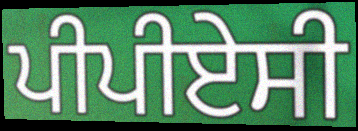
ਪੀਪੀਏਸੀ